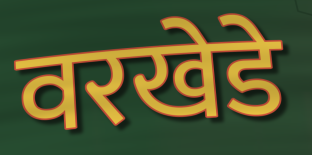
वरखेडे